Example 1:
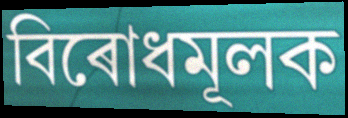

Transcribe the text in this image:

বিৰোধমূলক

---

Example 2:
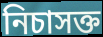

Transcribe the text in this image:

নিচাসক্ত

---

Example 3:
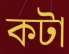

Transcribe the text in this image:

কটা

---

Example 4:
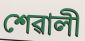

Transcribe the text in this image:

শেৱালী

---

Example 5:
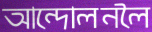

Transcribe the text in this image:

আন্দোলনলৈ